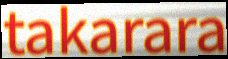
takarara